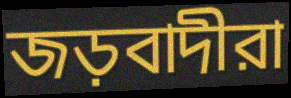
জড়বাদীরা